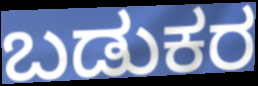
ಬಡುಕರ